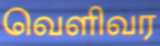
வெளிவர